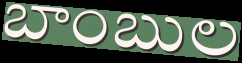
బాంబుల